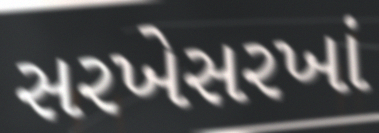
સરખેસરખાં